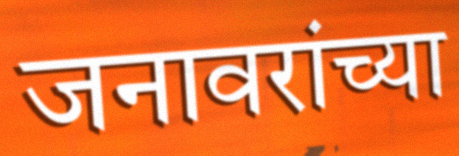
जनावरांच्या